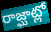
రాజ్ఘాట్లో